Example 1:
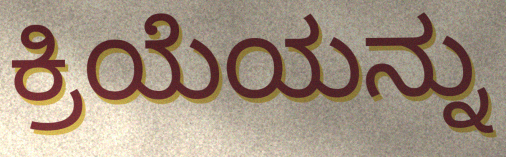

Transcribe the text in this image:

ಕ್ರಿಯೆಯನ್ನು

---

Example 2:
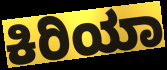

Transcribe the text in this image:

ಕಿರಿಯಾ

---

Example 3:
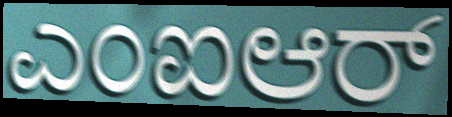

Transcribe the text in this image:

ಎಂಐಆರ್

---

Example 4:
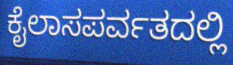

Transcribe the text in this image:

ಕೈಲಾಸಪರ್ವತದಲ್ಲಿ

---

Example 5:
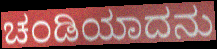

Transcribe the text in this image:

ಚಂಡಿಯಾದನು